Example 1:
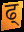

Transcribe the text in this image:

ढ्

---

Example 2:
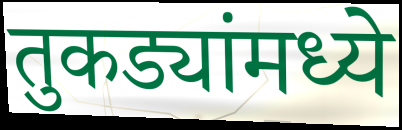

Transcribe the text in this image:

तुकड्यांमध्ये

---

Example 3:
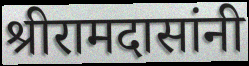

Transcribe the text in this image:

श्रीरामदासांनी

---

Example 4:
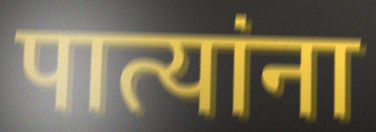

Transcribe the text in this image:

पात्यांना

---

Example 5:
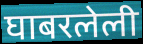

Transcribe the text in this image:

घाबरलेली